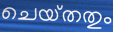
ചെയ്‌തതും